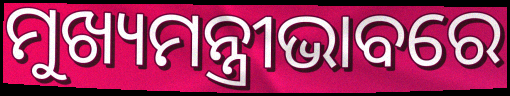
ମୁଖ୍ୟମନ୍ତ୍ରୀଭାବରେ